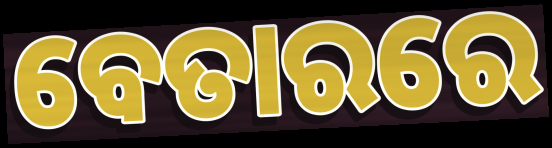
ବେତାରରେ